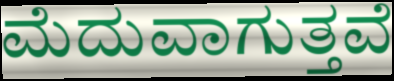
ಮೆದುವಾಗುತ್ತವೆ